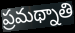
ప్రమథ్నాతి